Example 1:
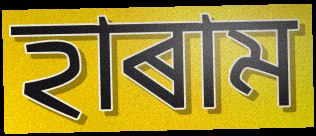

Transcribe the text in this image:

হাৰাম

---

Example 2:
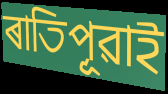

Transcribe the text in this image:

ৰাতিপূৱাই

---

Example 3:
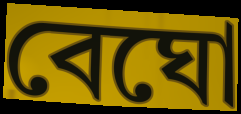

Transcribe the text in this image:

বেঘো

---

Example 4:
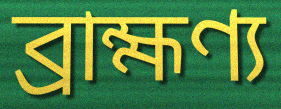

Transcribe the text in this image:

ব্ৰাহ্মণ্য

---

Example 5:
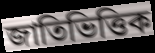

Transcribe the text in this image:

জাতিভিত্তিক